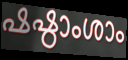
ഷഷ്ഠാംശാം